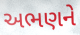
અભણને